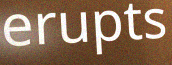
erupts